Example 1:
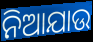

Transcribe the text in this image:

ନିଆଯାଉ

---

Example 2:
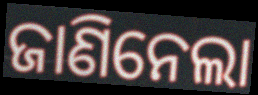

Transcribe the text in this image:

ଜାଣିନେଲା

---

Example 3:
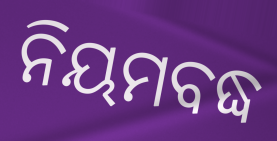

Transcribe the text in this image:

ନିୟମବଦ୍ଧ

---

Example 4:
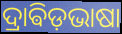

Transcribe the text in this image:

ଦ୍ରାଵିଡ଼ଭାଷା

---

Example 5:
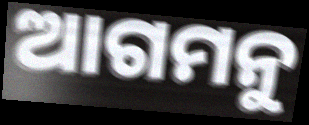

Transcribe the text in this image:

ଆଗମନୁ